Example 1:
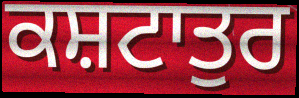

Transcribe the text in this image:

ਕਸ਼ਟਾਤੁਰ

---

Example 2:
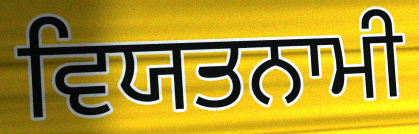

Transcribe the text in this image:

ਵਿਯਤਨਾਮੀ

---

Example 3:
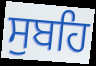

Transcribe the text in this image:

ਸੁਬਹਿ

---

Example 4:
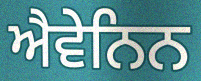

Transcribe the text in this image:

ਐਵੇਨਿਨ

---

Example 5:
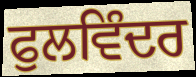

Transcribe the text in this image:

ਫੁਲਵਿੰਦਰ